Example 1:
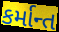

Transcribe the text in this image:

કર્માન્ત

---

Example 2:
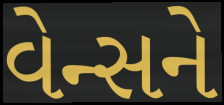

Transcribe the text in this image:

વેન્સને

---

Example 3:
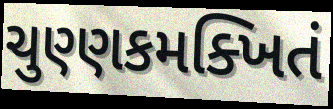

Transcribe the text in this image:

ચુણ્ણકમક્ખિતં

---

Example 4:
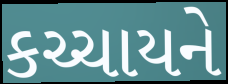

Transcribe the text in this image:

કચ્ચાયને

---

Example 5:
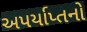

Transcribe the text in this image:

અપર્યાપ્તનો